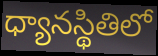
ధ్యానస్థితిలో